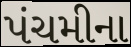
પંચમીના